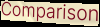
Comparison